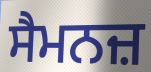
ਸੈਮਨਜ਼